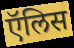
ऍलिस